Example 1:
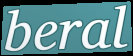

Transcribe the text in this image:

beral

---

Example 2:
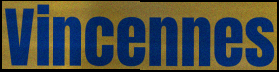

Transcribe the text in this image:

Vincennes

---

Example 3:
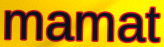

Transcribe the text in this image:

mamat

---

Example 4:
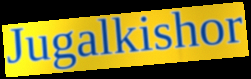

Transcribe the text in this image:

Jugalkishor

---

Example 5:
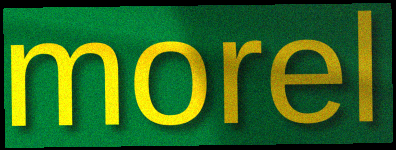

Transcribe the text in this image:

morel